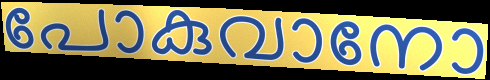
പോകുവാനോ